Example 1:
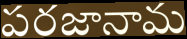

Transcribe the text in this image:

పరజానామ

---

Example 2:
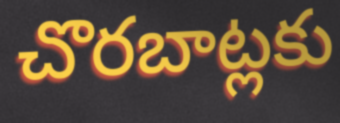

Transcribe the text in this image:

చొరబాట్లకు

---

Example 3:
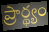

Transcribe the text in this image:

ప్రార్థ్యం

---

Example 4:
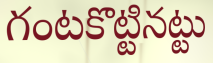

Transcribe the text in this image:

గంటకొట్టినట్టు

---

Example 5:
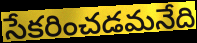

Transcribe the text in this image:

సేకరించడమనేది